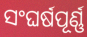
ସଂଘର୍ଷପୂର୍ଣ୍ଣ